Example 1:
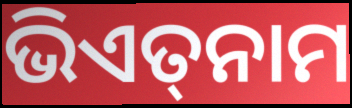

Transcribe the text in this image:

ଭିଏତ୍‌ନାମ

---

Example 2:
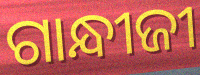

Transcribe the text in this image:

ଗାନ୍ଧୀଜୀ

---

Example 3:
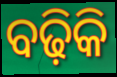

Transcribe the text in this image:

ବଢ଼ିକି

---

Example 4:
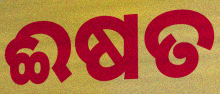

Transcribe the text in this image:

ଈଷତ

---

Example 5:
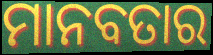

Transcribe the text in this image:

ମାନବତାର